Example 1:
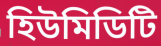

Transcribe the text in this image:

হিউমিডিটি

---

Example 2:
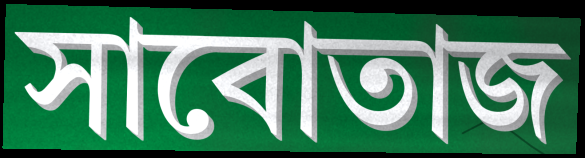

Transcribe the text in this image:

সাবোতাজ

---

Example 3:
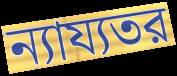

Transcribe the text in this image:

ন্যায্যতর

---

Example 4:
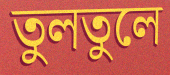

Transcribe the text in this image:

তুলতুলে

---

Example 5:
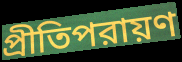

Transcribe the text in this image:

প্রীতিপরায়ণ